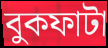
বুকফাটা